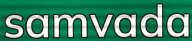
samvada